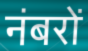
नंबरों